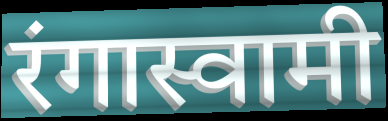
रंगास्वामी